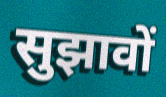
सुझावों